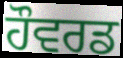
ਹੌਵਰਡ